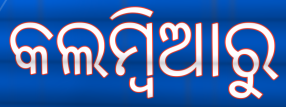
କଲମ୍ବିଆରୁ